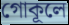
গোকূলে